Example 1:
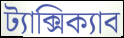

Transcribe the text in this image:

ট্যাক্সিক্যাব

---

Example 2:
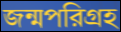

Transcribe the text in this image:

জন্মপরিগ্রহ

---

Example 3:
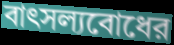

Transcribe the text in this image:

বাৎসল্যবোধের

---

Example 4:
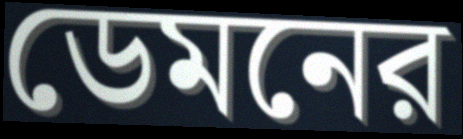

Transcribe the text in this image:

ডেমনের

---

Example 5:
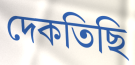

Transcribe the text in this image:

দেকতিছি